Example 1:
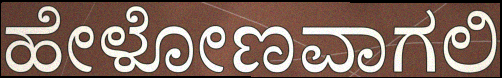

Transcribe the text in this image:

ಹೇಳೋಣವಾಗಲಿ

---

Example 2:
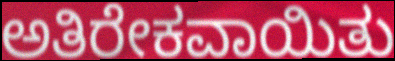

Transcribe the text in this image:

ಅತಿರೇಕವಾಯಿತು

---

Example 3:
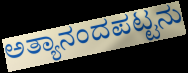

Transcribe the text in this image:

ಅತ್ಯಾನಂದಪಟ್ಟನು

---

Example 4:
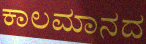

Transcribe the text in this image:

ಕಾಲಮಾನದ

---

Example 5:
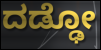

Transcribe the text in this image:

ದಡ್ಢೋ